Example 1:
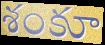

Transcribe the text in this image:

శంకూ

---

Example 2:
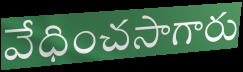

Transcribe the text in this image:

వేధించసాగారు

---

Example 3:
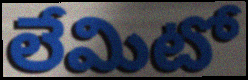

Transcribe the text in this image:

లేమిటో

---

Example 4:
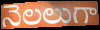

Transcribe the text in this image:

నెలలుగా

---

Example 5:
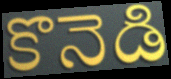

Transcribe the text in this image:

కొనెడి